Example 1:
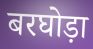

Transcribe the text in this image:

बरघोड़ा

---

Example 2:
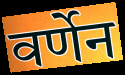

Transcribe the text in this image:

वर्णेन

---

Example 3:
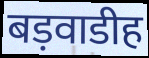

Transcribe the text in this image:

बड़वाडीह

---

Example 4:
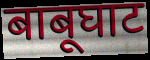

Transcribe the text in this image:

बाबूघाट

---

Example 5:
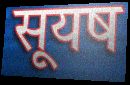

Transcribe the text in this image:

सूयष